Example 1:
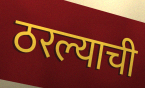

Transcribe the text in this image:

ठरल्याची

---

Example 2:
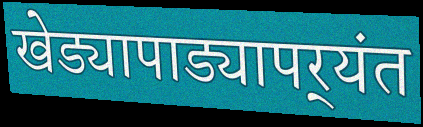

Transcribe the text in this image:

खेड्यापाड्यापर्यंत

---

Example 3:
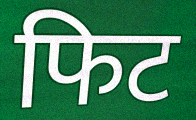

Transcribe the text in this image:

फिट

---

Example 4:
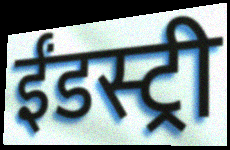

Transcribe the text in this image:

ईंडस्ट्री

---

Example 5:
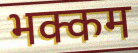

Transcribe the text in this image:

भक्कम